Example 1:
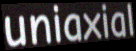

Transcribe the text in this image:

uniaxial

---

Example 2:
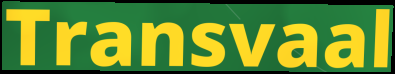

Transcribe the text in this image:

Transvaal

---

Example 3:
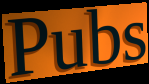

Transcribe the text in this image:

Pubs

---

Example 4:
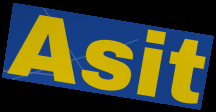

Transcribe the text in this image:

Asit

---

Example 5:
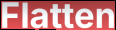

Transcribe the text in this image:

Flatten